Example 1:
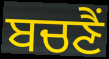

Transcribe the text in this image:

ਬਚਣੈਂ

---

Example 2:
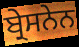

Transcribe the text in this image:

ਬ੍ਰੇਸਨੇਨ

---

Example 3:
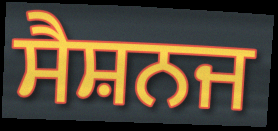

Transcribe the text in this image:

ਸੈਸ਼ਨਜ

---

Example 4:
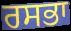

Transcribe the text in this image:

ਰਸਭਾ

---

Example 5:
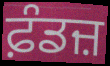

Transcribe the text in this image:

ਫ਼ੰਡਜ਼